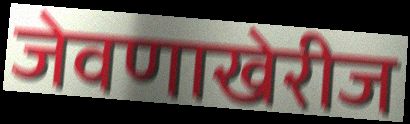
जेवणाखेरीज